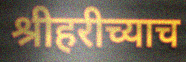
श्रीहरीच्याच